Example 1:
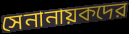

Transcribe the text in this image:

সেনানায়কদের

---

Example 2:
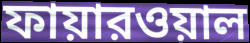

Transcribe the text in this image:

ফায়ারওয়াল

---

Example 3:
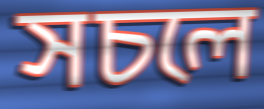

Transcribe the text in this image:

সচলে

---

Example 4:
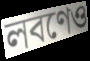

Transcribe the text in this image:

লবণেও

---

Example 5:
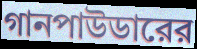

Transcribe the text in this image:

গানপাউডারের